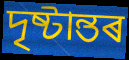
দৃষ্টান্তৰ